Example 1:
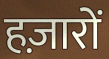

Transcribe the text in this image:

हज़ारों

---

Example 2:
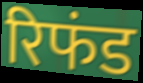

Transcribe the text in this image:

रिफंड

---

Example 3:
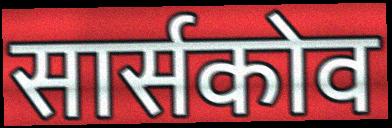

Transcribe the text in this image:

सार्सकोव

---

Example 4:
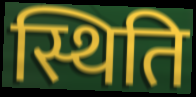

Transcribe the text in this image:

स्थिति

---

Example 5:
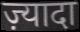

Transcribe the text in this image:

ज़्यादा